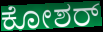
ಕೋಶರ್